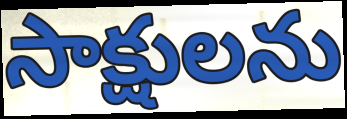
సాక్షులను